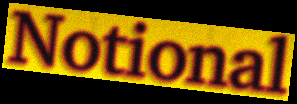
Notional